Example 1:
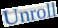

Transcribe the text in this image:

Unroll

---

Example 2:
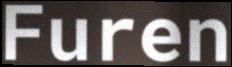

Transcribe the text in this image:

Furen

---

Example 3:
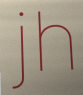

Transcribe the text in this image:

jh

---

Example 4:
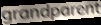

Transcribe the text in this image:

grandparent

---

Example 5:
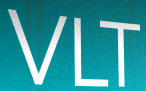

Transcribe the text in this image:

VLT